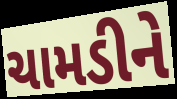
ચામડીને